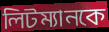
লিটম্যানকে